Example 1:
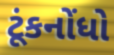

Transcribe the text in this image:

ટૂંકનોંધો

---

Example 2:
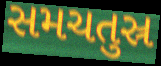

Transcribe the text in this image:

સમચતુસ્ર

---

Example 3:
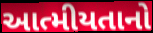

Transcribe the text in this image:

આત્મીયતાનો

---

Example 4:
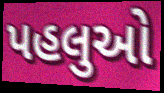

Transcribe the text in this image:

પહલુઓ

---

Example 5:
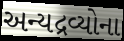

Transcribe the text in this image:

અન્યદ્રવ્યોના